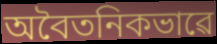
অবৈতনিকভাৱে